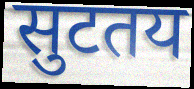
सुटतय